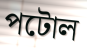
পটোল